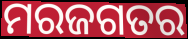
ମରଜଗତର